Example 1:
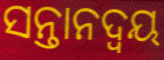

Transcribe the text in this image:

ସନ୍ତାନଦ୍ୱୟ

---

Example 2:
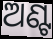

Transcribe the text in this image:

ଅଣ୍ଟ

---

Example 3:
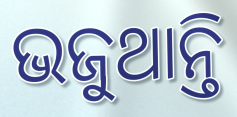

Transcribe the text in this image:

ଭଜୁଥାନ୍ତି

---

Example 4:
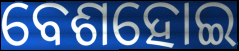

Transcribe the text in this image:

ବେଶହୋଇ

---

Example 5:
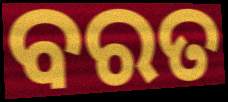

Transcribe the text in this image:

ବରତ